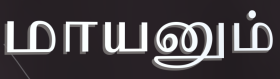
மாயனும்